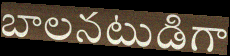
బాలనటుడిగా